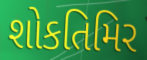
શોકતિમિર